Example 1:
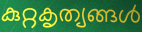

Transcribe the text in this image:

കുറ്റകൃത്യങ്ങൾ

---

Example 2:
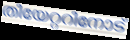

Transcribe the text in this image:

തിയേറ്ററിനോട്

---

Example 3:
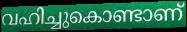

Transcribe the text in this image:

വഹിച്ചുകൊണ്ടാണ്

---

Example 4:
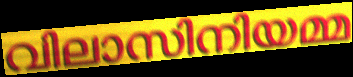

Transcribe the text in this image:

വിലാസിനിയമ്മ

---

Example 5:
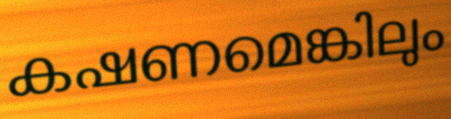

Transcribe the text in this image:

കഷണമെങ്കിലും